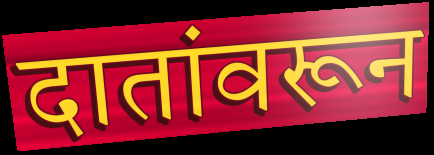
दातांवरून